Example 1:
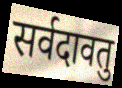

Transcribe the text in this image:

सर्वदावतु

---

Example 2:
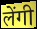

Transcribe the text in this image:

लेंगी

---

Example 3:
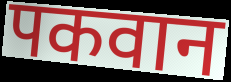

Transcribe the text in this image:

पकवान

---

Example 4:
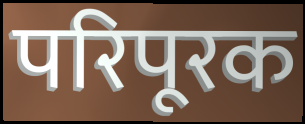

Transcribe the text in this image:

परिपूरक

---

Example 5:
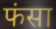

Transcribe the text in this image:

फंसा